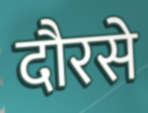
दौरसे